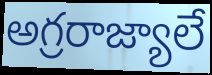
అగ్రరాజ్యాలే